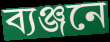
ব্যঞ্জনে